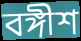
বঙ্গীশ